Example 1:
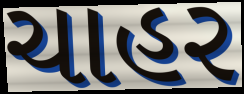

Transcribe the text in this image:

ચાહર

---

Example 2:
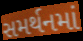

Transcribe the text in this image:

સમર્થનમાં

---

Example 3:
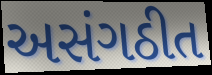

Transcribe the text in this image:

અસંગઠીત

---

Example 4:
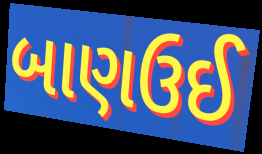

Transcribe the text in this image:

બાણઉઈ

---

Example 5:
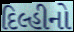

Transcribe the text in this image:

દિલ્હીનો